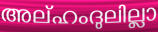
അല്ഹംദുലില്ലാ